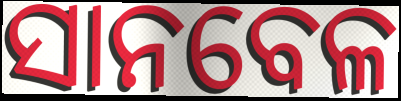
ସାନବେଳ